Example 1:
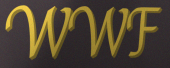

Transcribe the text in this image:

WWF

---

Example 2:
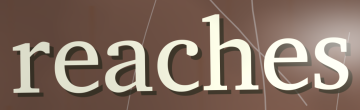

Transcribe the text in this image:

reaches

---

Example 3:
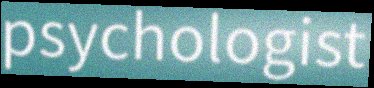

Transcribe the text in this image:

psychologist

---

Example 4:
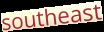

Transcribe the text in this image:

southeast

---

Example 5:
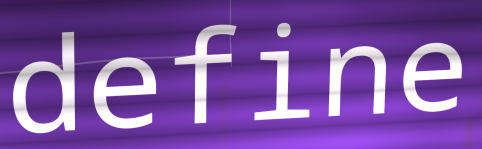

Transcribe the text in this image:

define